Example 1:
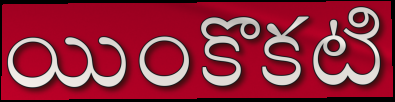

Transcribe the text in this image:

యింకొకటి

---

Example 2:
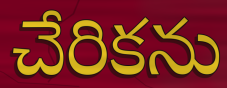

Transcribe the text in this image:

చేరికను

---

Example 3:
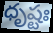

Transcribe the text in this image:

ధృష్టః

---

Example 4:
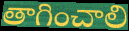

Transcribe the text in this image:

తాగించాలి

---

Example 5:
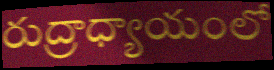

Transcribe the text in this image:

రుద్రాధ్యాయంలో